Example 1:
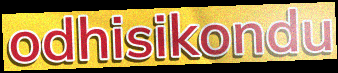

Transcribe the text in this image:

odhisikondu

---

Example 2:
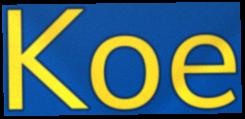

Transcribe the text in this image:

Koe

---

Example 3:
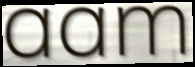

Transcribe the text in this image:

aam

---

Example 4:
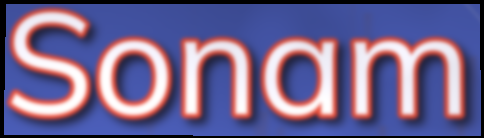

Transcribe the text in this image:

Sonam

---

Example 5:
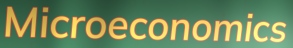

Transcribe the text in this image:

Microeconomics